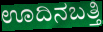
ಊದಿನಬತ್ತಿ